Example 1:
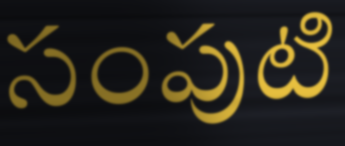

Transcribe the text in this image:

సంపుటి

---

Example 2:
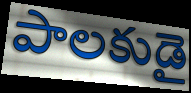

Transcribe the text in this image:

పాలకుడై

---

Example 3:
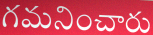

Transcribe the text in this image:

గమనించారు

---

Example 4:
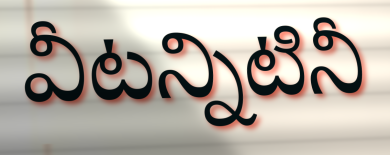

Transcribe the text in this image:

వీటన్నిటినీ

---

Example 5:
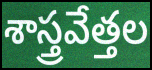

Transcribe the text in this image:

శాస్త్రవేత్తల